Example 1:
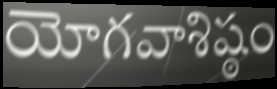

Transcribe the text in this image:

యోగవాశిష్ఠం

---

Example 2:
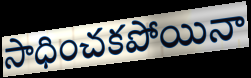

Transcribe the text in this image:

సాధించకపోయినా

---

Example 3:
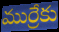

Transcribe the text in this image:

ముర్రేకు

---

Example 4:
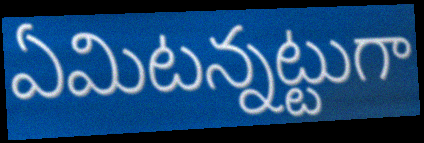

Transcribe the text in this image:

ఏమిటన్నట్టుగా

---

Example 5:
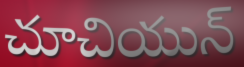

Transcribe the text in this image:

చూచియున్